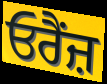
ਓਰੈਂਜ਼